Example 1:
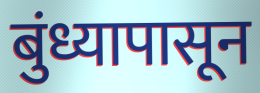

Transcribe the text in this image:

बुंध्यापासून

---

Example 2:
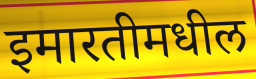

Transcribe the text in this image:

इमारतीमधील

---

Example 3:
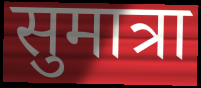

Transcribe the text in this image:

सुमात्रा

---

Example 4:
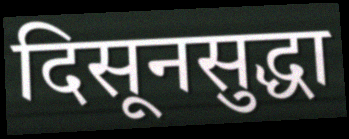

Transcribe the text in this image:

दिसूनसुद्धा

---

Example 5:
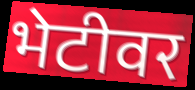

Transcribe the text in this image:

भेटीवर